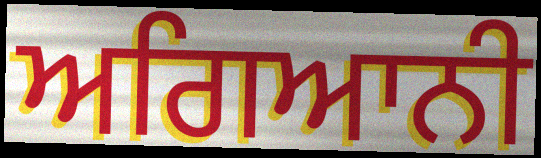
ਅਗਿਆਨੀ